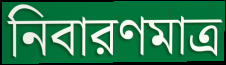
নিবারণমাত্র